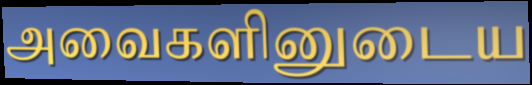
அவைகளினுடைய